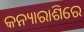
କନ୍ୟାରାଶିରେ